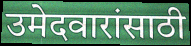
उमेदवारांसाठी